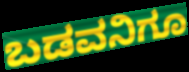
ಬಡವನಿಗೂ